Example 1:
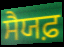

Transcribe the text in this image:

ਸੈਯਫ਼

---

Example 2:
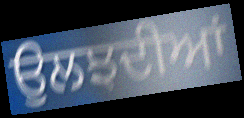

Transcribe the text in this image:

ਉਲਝਦੀਆਂ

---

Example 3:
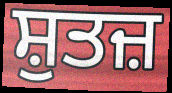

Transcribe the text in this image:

ਸ਼ੁਤਜ਼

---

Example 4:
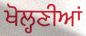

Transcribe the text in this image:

ਖੋਲ੍ਹਣੀਆਂ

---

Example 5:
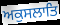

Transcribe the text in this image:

ਅਕੁਸਲਾਤਿ